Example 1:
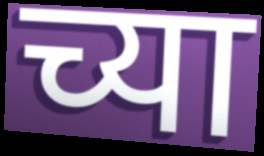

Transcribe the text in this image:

च्या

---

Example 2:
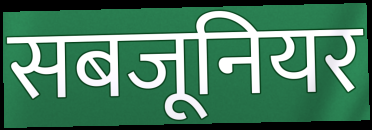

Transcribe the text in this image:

सबजूनियर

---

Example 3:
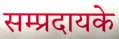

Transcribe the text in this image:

सम्प्रदायके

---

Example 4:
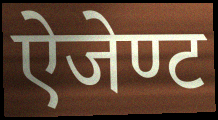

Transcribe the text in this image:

ऐजेण्ट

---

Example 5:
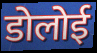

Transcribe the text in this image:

डोलोई